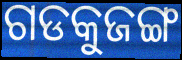
ଗଡକୁଜଙ୍ଗ